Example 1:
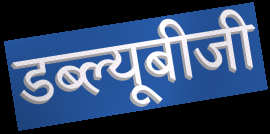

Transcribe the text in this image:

डब्ल्यूबीजी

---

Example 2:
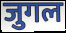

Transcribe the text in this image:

जुगल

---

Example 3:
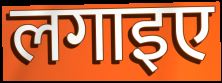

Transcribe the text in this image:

लगाइए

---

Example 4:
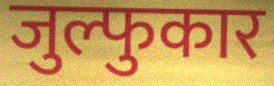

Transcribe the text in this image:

जुल्फुकार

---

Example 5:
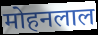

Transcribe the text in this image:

मोहनलाल